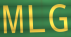
MLG